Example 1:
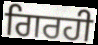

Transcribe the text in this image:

ਗਿਰਹੀ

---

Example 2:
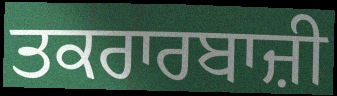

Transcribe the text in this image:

ਤਕਰਾਰਬਾਜ਼ੀ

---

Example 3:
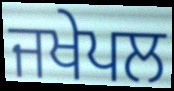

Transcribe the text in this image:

ਜਖੇਪਲ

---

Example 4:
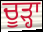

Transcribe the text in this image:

ਚੂੜ੍ਹਾ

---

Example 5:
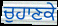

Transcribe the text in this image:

ਚੁਹਾਣਕੇ